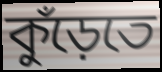
কুঁড়েতে